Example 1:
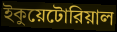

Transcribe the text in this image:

ইকুয়েটোরিয়াল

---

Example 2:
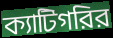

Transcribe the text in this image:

ক্যাটিগরির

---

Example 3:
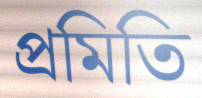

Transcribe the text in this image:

প্রমিতি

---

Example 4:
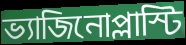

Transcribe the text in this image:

ভ্যাজিনোপ্লাস্টি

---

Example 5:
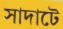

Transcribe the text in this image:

সাদাটে